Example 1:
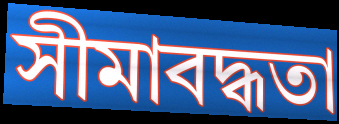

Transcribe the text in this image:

সীমাবদ্ধতা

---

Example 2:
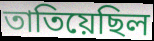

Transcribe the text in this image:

তাতিয়েছিল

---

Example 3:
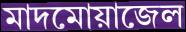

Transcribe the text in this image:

মাদমোয়াজেল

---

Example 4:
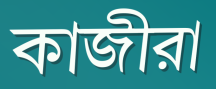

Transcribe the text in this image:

কাজীরা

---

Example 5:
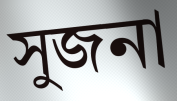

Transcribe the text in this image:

সুজনা